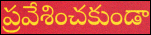
ప్రవేశించకుండా